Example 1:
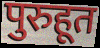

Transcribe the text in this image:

पुरुहूत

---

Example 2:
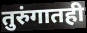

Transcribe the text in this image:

तुरुंगातही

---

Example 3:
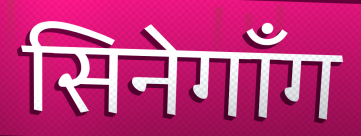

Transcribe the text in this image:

सिनेगाँग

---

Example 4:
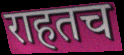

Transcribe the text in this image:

राहतच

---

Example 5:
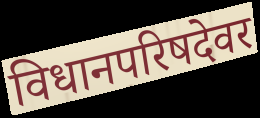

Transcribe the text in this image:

विधानपरिषदेवर